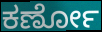
ಕರ್ಣೋ